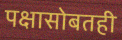
पक्षासोबतही